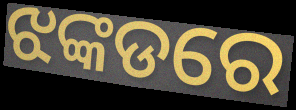
ଝଙ୍କଡରେ